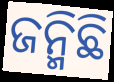
ଜନ୍ମିଛି